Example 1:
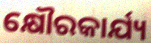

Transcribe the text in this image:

କ୍ଷୌରକାର୍ଯ୍ୟ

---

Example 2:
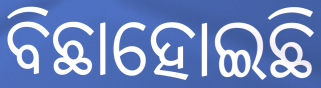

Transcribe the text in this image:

ବିଛାହୋଇଛି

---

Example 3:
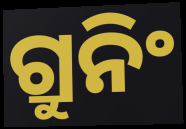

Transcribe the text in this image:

ଗ୍ରୁନିଂ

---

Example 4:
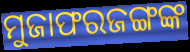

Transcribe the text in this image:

ମୁଜାଫରଜଙ୍ଗଙ୍କ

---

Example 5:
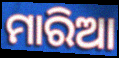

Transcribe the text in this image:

ମାରିଆ